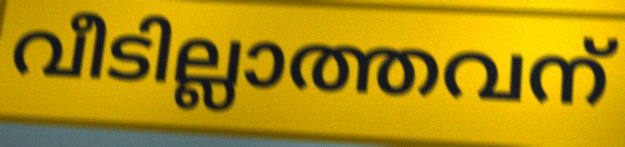
വീടില്ലാത്തവന്